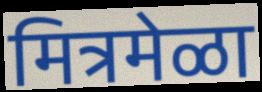
मित्रमेळा